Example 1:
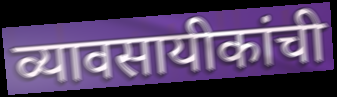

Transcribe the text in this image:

व्यावसायीकांची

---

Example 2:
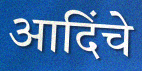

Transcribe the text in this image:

आदिंचे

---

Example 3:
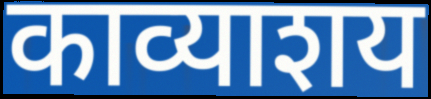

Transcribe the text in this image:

काव्याशय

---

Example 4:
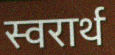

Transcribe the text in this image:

स्वरार्थ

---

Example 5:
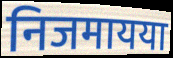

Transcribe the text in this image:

निजमायया